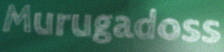
Murugadoss